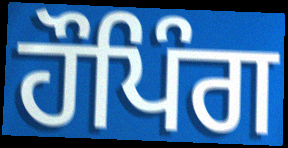
ਹੌਪਿੰਗ